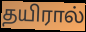
தயிரால்